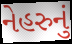
નેહરુનું